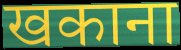
खकाना